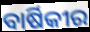
ବାର୍ଷିକୀର